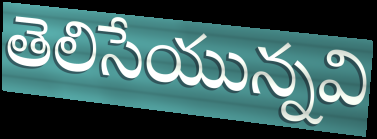
తెలిసేయున్నవి